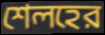
শেলহের